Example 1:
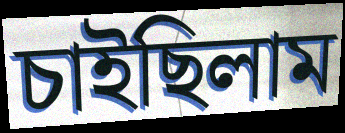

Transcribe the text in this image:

চাইছিলাম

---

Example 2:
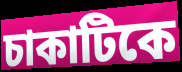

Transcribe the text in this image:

চাকাটিকে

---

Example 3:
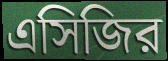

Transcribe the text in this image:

এসিজির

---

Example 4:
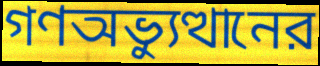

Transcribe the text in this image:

গণঅভ্যুত্থানের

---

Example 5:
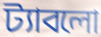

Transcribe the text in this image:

ট্যাবলো